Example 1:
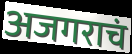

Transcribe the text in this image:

अजगराचं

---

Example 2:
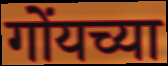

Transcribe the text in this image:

गोंयच्या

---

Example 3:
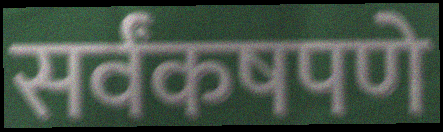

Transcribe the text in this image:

सर्वंकषपणे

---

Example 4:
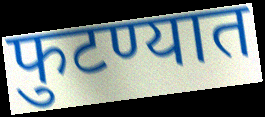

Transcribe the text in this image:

फुटण्यात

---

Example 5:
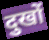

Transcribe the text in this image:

दुखों